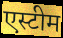
एस्टीम